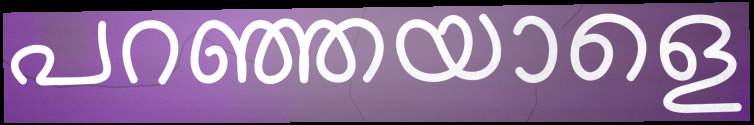
പറഞ്ഞയാളെ